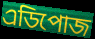
এডিপোজ